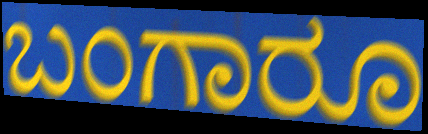
ಬಂಗಾರೂ